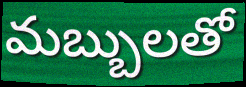
మబ్బులతో